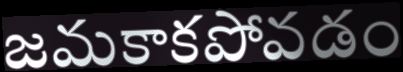
జమకాకపోవడం